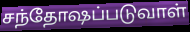
சந்தோஷப்படுவாள்